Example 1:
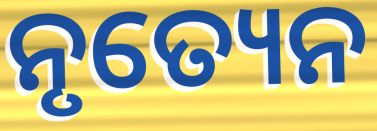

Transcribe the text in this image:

ନୃତ୍ୟେନ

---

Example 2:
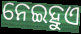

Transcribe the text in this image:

ନେଇହୁଏ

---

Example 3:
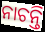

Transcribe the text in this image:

ନାଚନ୍ତି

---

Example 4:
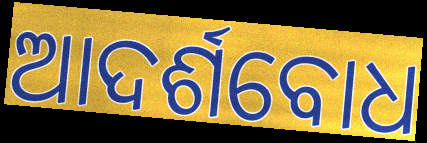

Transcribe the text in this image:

ଆଦର୍ଶବୋଧ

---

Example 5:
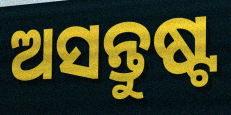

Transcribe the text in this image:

ଅସନ୍ତୁଷ୍ଟ